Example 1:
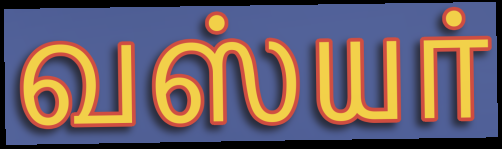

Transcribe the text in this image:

வஸ்யர்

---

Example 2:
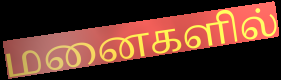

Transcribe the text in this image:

மனைகளில்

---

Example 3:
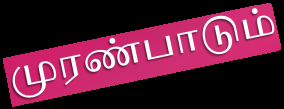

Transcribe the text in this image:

முரண்பாடும்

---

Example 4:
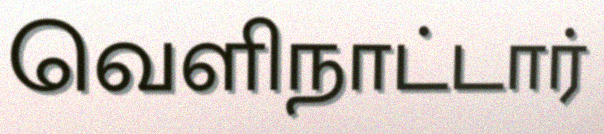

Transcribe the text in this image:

வெளிநாட்டார்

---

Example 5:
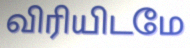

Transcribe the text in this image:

விரியிடமே